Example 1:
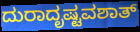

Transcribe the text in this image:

ದುರಾದೃಷ್ಟವಶಾತ್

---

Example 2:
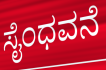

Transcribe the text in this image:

ಸೈಂಧವನೆ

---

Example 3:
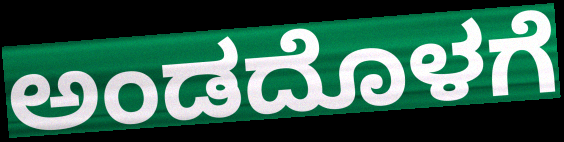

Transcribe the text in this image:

ಅಂಡದೊಳಗೆ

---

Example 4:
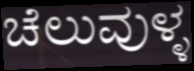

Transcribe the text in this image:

ಚೆಲುವುಳ್ಳ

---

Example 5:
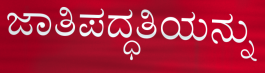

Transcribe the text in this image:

ಜಾತಿಪದ್ಧತಿಯನ್ನು